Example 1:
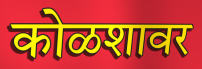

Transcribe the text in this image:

कोळशावर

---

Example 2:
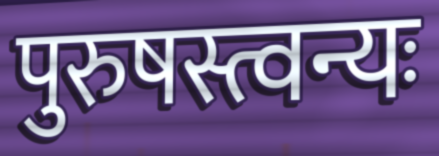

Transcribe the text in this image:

पुरुषस्त्वन्यः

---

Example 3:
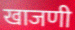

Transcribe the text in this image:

खाजणी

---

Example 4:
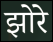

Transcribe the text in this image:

झोरे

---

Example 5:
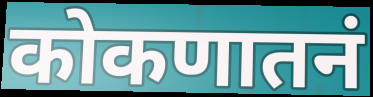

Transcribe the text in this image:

कोकणातनं